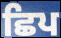
ਛਿਪ